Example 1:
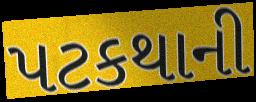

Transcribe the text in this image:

પટકથાની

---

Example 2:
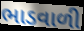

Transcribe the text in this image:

ભાડવાળી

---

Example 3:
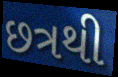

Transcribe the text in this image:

છત્રથી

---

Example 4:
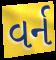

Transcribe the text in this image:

વર્ન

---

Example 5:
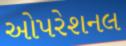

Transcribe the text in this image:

ઓપરેશનલ